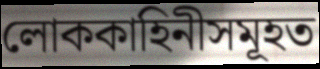
লোককাহিনীসমূহত